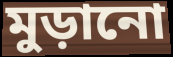
মুড়ানো